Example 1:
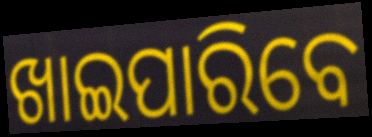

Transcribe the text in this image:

ଖାଇପାରିବେ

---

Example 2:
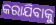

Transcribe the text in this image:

କରାଯିବାକୁ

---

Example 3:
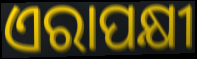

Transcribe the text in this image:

ଏରାପକ୍ଷୀ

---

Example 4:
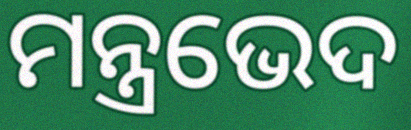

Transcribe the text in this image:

ମନ୍ତ୍ରଭେଦ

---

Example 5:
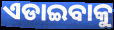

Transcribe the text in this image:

ଏଡାଇବାକୁ